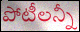
పోటీలన్నీ